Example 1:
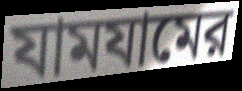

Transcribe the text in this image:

যামযামের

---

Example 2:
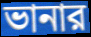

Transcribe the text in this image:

ভানার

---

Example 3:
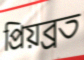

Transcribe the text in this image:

প্রিয়ব্রত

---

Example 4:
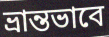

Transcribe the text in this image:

ভ্রান্তভাবে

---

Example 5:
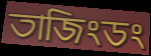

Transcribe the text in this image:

তাজিংডং